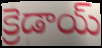
క్రెడాయ్